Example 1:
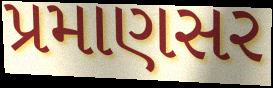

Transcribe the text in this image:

પ્રમાણસર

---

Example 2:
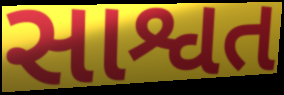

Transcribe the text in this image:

સાશ્વત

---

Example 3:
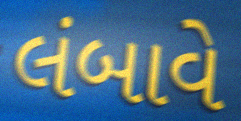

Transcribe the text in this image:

લંબાવે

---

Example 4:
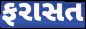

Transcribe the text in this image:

ફરાસત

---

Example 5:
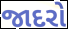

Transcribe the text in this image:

જાદરો